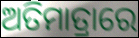
ଅତିମାତ୍ରାରେ